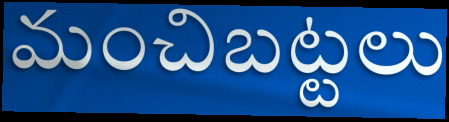
మంచిబట్టలు